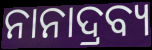
ନାନାଦ୍ରବ୍ୟ